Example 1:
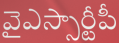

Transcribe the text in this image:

వైఎస్సార్టీపీ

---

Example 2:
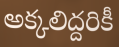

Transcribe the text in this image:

అక్కలిద్దరికీ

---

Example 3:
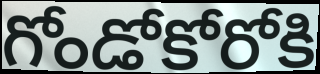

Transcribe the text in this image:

గోండోకోరోకి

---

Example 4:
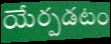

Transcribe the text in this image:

యేర్పడటం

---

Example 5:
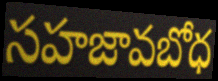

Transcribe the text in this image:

సహజావబోధ